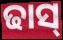
ଢାସ୍